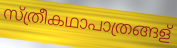
സ്ത്രീകഥാപാത്രങ്ങള്